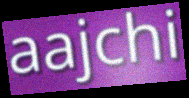
aajchi